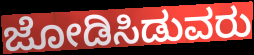
ಜೋಡಿಸಿಡುವರು